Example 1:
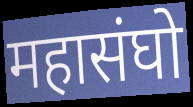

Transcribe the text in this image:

महासंघो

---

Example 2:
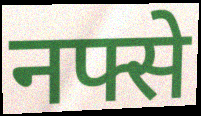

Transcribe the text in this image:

नफ्से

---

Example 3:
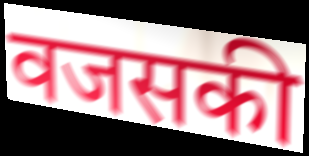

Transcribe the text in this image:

वजसकी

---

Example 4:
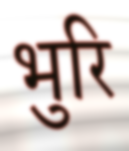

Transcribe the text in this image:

भुरि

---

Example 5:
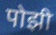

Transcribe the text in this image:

पोझी